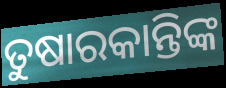
ତୁଷାରକାନ୍ତିଙ୍କ